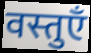
वस्तुएँ